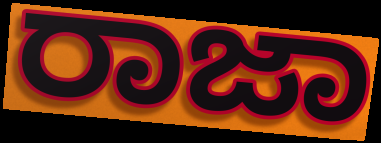
ರಾಜಾ